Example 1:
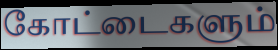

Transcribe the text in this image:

கோட்டைகளும்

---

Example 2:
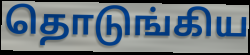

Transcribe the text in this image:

தொடுங்கிய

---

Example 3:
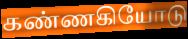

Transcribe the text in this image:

கண்ணகியோடு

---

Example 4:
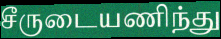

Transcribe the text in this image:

சீருடையணிந்து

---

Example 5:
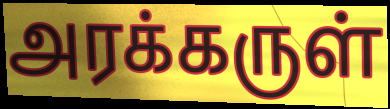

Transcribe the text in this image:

அரக்கருள்